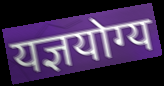
यज्ञयोग्य